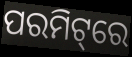
ପରମିଟ୍‌ରେ